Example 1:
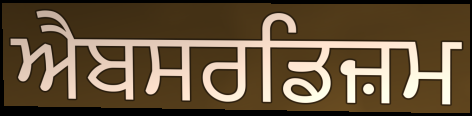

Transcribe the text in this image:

ਐਬਸਰਡਿਜ਼ਮ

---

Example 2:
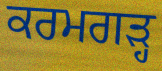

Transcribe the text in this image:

ਕਰਮਗੜ੍ਹ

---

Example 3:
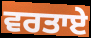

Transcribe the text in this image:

ਵਰਤਾਏ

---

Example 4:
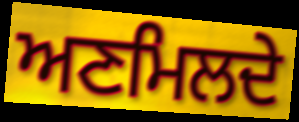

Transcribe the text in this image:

ਅਣਮਿਲਦੇ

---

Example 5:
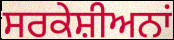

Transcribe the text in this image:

ਸਰਕੇਸ਼ੀਅਨਾਂ